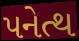
પનેત્થ